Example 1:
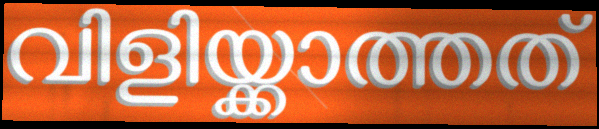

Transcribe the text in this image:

വിളിയ്ക്കാത്തത്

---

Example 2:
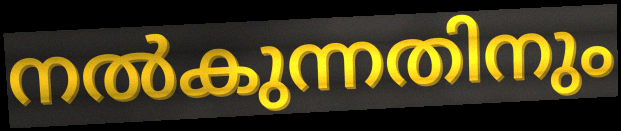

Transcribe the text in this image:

നൽകുന്നതിനും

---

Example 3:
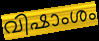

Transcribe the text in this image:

വിഷാംശം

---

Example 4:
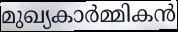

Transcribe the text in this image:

മുഖ്യകാർമ്മികൻ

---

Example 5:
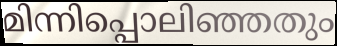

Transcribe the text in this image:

മിന്നിപ്പൊലിഞ്ഞതും